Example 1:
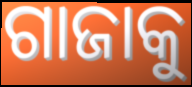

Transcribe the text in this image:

ଗାଜାକୁ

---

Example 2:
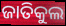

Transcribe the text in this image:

ଜାତିକୁଲ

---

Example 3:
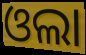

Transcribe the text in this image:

ଓଲା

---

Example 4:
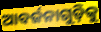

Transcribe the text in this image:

ଆବର୍ଜନାଗୁଡ଼ିକୁ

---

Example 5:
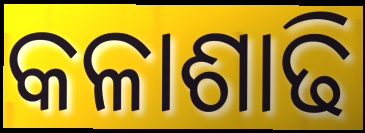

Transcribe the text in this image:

କଳାଶାଢି